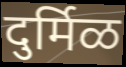
दुर्मिळ